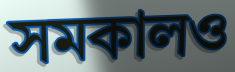
সমকালও